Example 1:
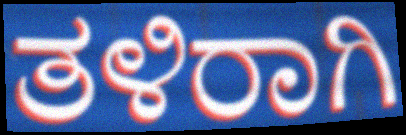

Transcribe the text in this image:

ತಳಿರಾಗಿ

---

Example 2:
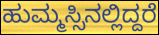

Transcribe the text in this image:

ಹುಮ್ಮಸ್ಸಿನಲ್ಲಿದ್ದರೆ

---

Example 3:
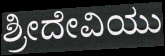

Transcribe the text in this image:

ಶ್ರೀದೇವಿಯು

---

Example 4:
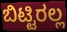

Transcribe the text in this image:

ಬಿಟ್ಟಿರಲ್ಲ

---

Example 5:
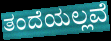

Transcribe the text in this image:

ತಂದೆಯಲ್ಲವೆ